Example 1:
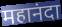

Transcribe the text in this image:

महानंदा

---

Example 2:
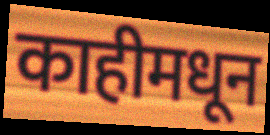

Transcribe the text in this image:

काहीमधून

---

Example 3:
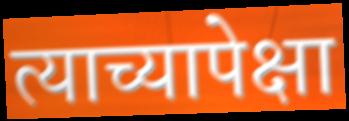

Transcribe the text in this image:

त्याच्यापेक्षा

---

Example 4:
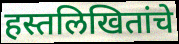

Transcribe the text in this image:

हस्तलिखितांचे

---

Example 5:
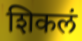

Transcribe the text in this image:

शिकलं